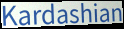
Kardashian